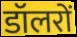
डॉलरों